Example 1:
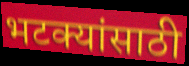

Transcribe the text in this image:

भटक्यांसाठी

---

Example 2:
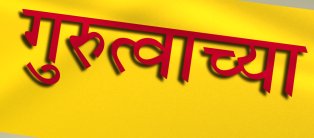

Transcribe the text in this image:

गुरुत्वाच्या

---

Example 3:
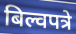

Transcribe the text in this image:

बिल्वपत्रे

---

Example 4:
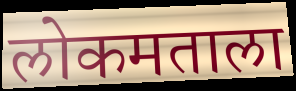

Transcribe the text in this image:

लोकमताला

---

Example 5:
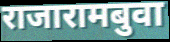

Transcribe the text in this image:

राजारामबुवा